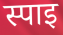
स्पाइ